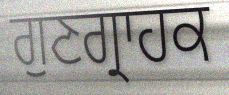
ਗੁਣਗ੍ਰਾਹਕ